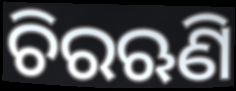
ଚିରଋଣି